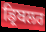
ਡ੍ਰਿਬਲਰ